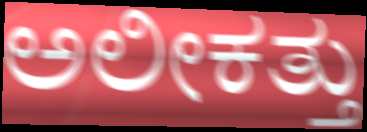
ಅಲೀಕತ್ತು